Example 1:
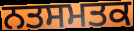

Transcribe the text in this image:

ਨਤਸਮਤਕ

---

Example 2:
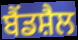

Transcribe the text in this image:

ਬੈਂਡਸ਼ੈਲ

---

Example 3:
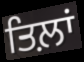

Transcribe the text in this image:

ਤਿਲ਼ਾਂ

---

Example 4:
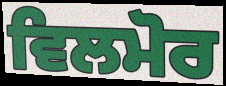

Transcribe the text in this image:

ਵਿਲਮੋਰ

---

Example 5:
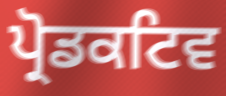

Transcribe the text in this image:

ਪ੍ਰੋਡਕਟਿਵ